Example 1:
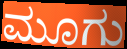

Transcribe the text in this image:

ಮೂಗು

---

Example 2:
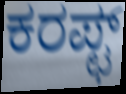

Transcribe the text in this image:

ಕರಪ್ಟ್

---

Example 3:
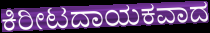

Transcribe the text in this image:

ಕಿರೀಟದಾಯಕವಾದ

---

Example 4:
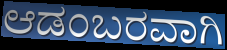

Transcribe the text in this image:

ಆಡಂಬರವಾಗಿ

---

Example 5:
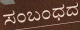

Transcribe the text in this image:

ಸಂಬಂಧದ